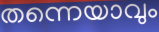
തന്നെയാവും